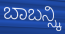
ಬಾಬನ್ಸ್ಕಿ